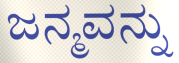
ಜನ್ಮವನ್ನು